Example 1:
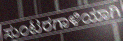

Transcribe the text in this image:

ಸುಂಟರಗಾಳಿಯಾಗಿ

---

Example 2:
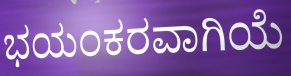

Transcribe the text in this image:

ಭಯಂಕರವಾಗಿಯೆ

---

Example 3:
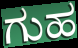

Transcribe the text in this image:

ಗುಹ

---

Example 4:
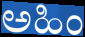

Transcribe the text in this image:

ಅಹಿಂ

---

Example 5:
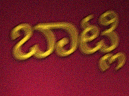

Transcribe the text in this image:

ಬಾಟ್ಲಿ